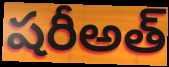
షరీఅత్